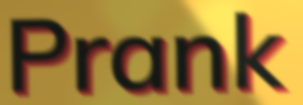
Prank